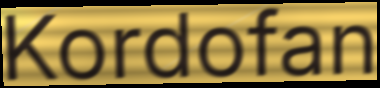
Kordofan